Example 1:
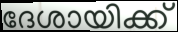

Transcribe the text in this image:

ദേശായിക്ക്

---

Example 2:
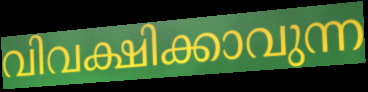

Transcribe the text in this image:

വിവക്ഷിക്കാവുന്ന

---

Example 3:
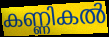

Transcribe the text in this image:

കണ്ണികൽ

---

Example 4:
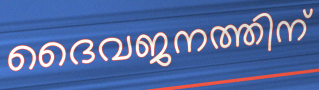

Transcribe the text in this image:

ദൈവജനത്തിന്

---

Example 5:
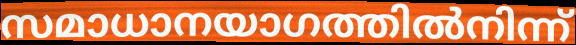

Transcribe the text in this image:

സമാധാനയാഗത്തിൽനിന്ന്